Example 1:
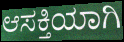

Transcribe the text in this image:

ಆಸಕ್ತಿಯಾಗಿ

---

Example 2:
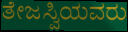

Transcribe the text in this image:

ತೇಜಸ್ವಿಯವರು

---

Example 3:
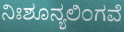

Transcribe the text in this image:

ನಿಃಶೂನ್ಯಲಿಂಗವೆ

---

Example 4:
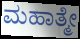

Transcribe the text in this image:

ಮಹಾತ್ಮೇ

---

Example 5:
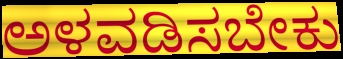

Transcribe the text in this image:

ಅಳವಡಿಸಬೇಕು